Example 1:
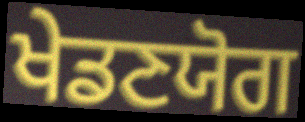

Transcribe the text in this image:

ਖੇਡਣਯੋਗ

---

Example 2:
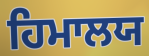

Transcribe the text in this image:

ਹਿਮਾਲਯ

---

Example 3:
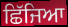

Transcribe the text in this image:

ਛਿੱਜਿਆ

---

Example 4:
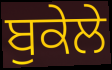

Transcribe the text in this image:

ਬੁਕੇਲੇ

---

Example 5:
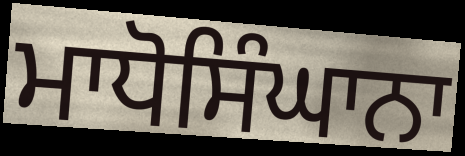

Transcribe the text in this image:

ਮਾਧੋਸਿੰਘਾਨਾ